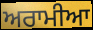
ਅਰਾਮੀਆ